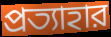
প্রত্যাহার